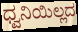
ಧ್ವನಿಯಿಲ್ಲದ